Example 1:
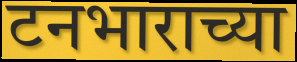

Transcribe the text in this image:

टनभाराच्या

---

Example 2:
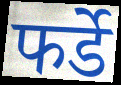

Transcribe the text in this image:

फर्डे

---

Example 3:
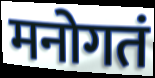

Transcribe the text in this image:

मनोगतं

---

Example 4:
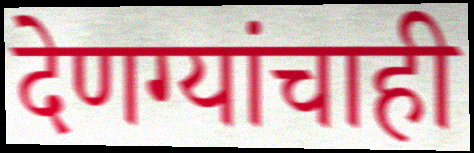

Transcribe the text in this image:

देणग्यांचाही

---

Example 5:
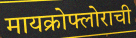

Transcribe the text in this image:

मायक्रोफ्लोराची